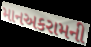
માનઅકરામની